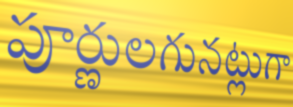
పూర్ణులగునట్లుగా